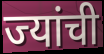
ज्यांची